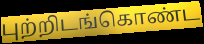
புற்றிடங்கொண்ட